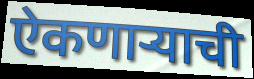
ऐकणार्‍याची